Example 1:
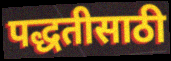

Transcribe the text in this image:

पद्धतीसाठी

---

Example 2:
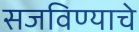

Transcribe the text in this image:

सजविण्याचे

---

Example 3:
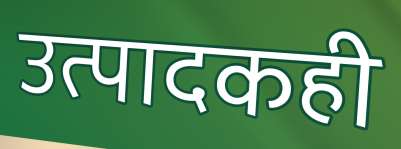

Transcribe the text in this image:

उत्पादकही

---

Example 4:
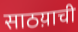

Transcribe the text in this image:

साठय़ाची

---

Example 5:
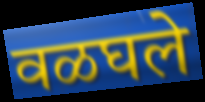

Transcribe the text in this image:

वळघले